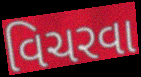
વિચરવા